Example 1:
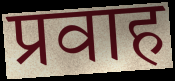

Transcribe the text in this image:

प्रवाह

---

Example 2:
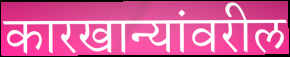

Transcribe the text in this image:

कारखान्यांवरील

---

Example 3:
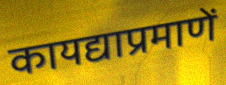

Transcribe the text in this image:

कायद्याप्रमाणें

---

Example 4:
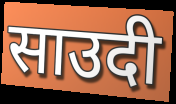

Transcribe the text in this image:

साउदी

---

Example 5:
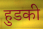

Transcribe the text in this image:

हुडकी